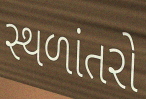
સ્થળાંતરો